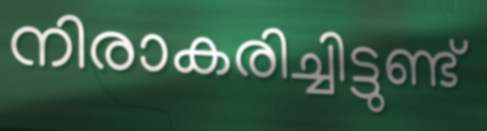
നിരാകരിച്ചിട്ടുണ്ട്